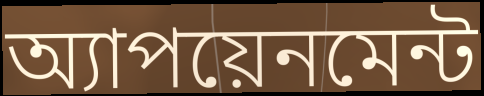
অ্যাপয়েনমেন্ট